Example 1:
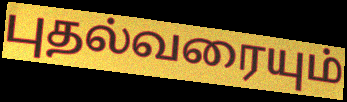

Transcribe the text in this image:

புதல்வரையும்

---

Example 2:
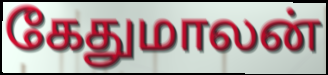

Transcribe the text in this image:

கேதுமாலன்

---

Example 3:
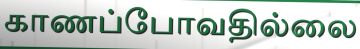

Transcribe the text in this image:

காணப்போவதில்லை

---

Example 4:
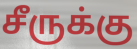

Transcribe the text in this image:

சீருக்கு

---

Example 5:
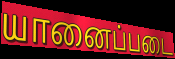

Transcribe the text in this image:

யானைப்படை